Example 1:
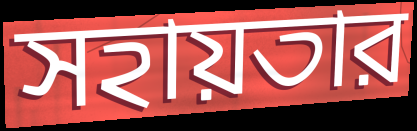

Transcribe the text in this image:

সহায়তার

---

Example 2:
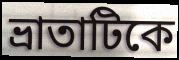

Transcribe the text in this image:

ভ্রাতাটিকে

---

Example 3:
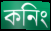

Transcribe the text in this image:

কনিং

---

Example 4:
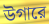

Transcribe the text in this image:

উগারে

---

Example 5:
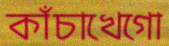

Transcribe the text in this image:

কাঁচাখেগো